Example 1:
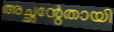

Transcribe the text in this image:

അച്ഛന്റേതായി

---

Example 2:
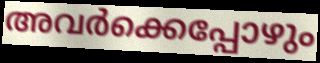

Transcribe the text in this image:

അവർക്കെപ്പോഴും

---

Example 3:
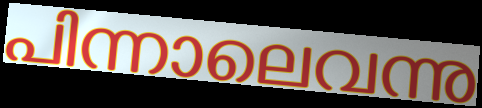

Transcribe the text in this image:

പിന്നാലെവന്നു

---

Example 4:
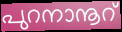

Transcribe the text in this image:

പുറനാനൂറ്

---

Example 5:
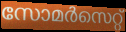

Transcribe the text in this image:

സോമർസെറ്റ്